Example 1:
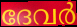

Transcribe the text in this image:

ദേവർ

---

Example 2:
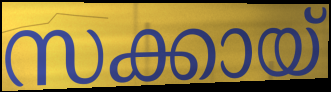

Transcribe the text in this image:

സക്കായ്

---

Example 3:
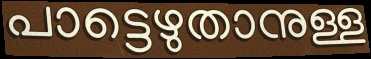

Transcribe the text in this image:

പാട്ടെഴുതാനുള്ള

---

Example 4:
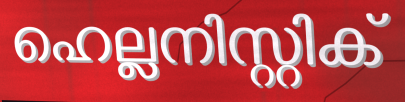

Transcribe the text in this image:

ഹെല്ലനിസ്റ്റിക്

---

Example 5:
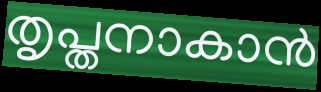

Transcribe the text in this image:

തൃപ്തനാകാൻ